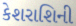
કેશરાશિની